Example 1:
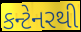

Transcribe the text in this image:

કન્ટેનરથી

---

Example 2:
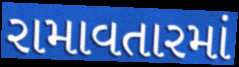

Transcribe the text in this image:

રામાવતારમાં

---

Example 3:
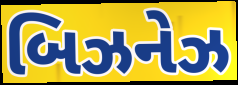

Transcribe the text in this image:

બિઝનેઝ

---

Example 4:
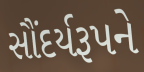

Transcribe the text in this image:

સૌંદર્યરૂપને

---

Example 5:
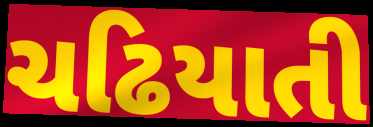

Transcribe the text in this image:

ચઢિયાતી